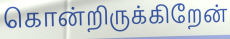
கொன்றிருக்கிறேன்